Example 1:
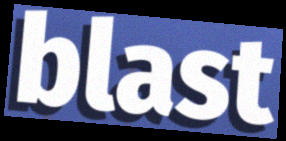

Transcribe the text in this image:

blast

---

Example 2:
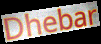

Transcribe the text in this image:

Dhebar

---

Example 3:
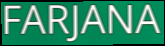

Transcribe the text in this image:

FARJANA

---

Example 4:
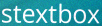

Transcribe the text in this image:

stextbox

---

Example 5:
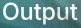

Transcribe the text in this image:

Output